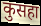
कुसहा